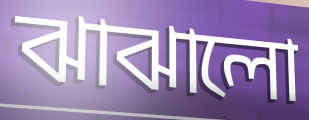
ঝাঝালো